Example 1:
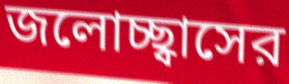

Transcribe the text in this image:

জলোচ্ছ্বাসের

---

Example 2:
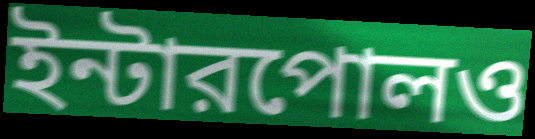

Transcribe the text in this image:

ইন্টারপোলও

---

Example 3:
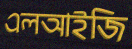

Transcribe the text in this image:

এলআইজি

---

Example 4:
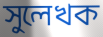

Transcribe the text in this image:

সুলেখক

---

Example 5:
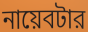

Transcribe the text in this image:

নায়েবটার